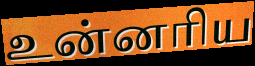
உன்னரிய